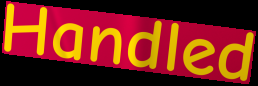
Handled